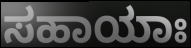
ಸಹಾಯಾಃ